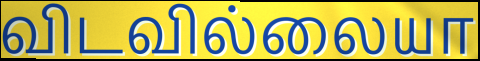
விடவில்லையா